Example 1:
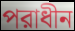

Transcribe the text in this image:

পরাধীন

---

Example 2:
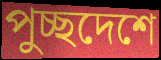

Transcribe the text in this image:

পুচ্ছদেশে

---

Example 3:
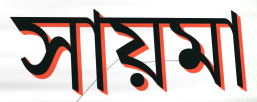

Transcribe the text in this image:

সায়মা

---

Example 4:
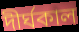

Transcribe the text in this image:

দীর্ঘকাল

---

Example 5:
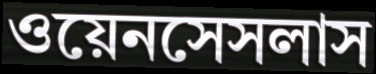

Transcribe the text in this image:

ওয়েনসেসলাস